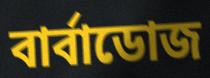
বার্বাডোজ